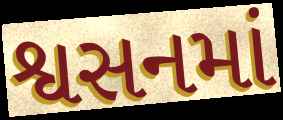
શ્વસનમાં